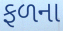
ફળના